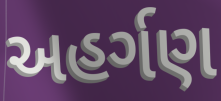
અહર્ગણ